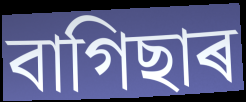
বাগিছাৰ